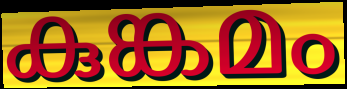
കുങ്കമം